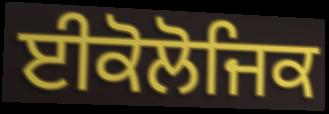
ਈਕੋਲੋਜਿਕ